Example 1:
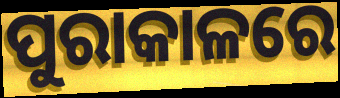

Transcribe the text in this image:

ପୁରାକାଳରେ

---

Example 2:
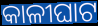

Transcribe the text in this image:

କାଳୀଘାଟ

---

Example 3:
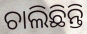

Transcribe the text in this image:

ଚାଲିଛିନ୍ତି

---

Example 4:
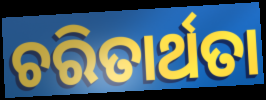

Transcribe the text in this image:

ଚରିତାର୍ଥତା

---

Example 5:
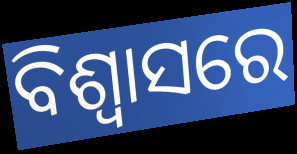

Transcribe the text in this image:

ବିଶ୍ୱାସରେ